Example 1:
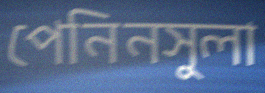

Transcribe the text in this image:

পেনিনসুলা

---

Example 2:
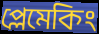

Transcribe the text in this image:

প্লেমেকিং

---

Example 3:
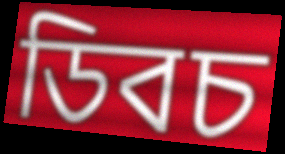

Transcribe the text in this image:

ডিবচ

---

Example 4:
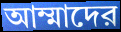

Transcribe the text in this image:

আম্মাদের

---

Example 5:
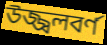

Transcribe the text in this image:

উজ্জ্বলবর্ণ